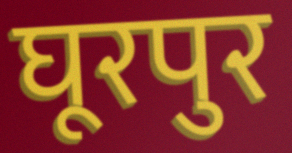
घूरपुर